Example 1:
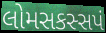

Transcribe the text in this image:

લોમસકસ્સપં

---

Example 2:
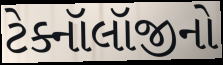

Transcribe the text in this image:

ટેક્નૉલૉજીનો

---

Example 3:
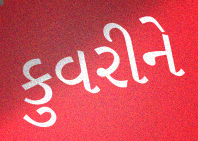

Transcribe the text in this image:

કુવરીને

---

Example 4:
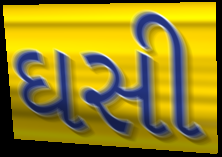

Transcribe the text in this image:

ઘસી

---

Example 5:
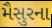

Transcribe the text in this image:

મૈસુરના